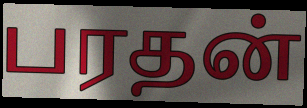
பரதன்